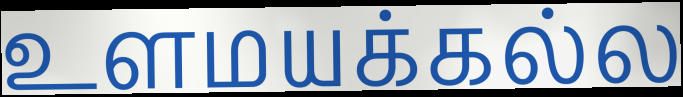
உளமயக்கல்ல